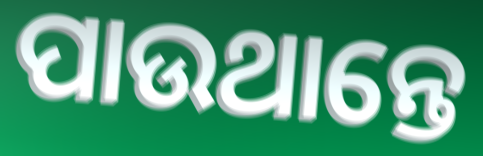
ପାଉଥାନ୍ତେ